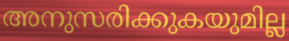
അനുസരിക്കുകയുമില്ല